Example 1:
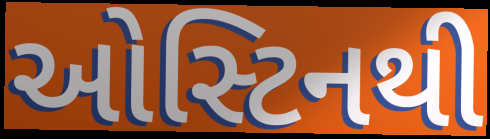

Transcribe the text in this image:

ઓસ્ટિનથી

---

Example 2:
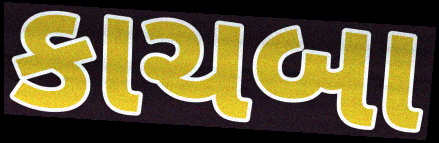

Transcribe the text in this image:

કાચબા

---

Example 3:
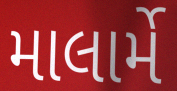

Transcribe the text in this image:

માલાર્મે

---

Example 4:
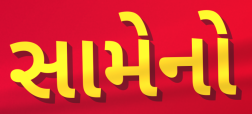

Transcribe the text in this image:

સામેનો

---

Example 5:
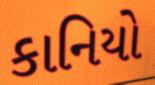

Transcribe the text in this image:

કાનિયો